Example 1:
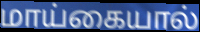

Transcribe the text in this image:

மாய்கையால்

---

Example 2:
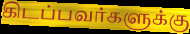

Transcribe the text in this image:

கிடப்பவர்களுக்கு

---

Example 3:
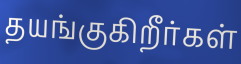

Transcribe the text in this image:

தயங்குகிறீர்கள்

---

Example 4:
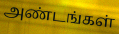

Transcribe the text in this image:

அண்டங்கள்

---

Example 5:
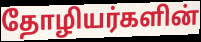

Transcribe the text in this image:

தோழியர்களின்